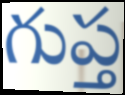
గుప్త